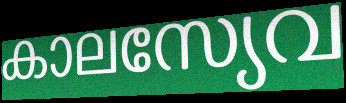
കാലസ്യേവ